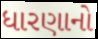
ધારણાનો